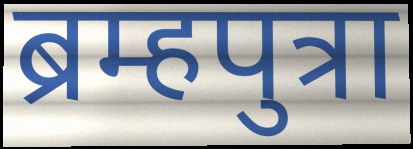
ब्रम्हपुत्रा